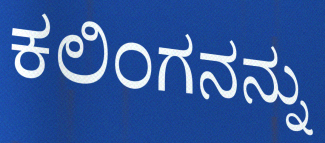
ಕಲಿಂಗನನ್ನು